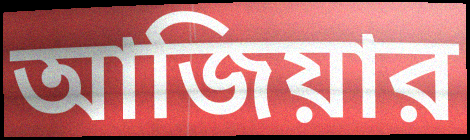
আজিয়ার